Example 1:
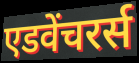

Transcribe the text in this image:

एडवेंचरर्स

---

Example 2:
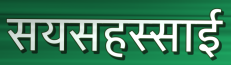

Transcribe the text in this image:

सयसहस्साई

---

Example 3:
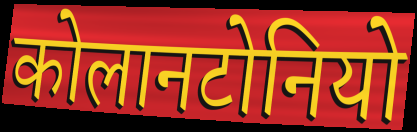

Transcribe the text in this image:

कोलानटोनियो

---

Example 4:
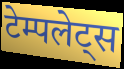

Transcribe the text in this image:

टेम्पलेट्स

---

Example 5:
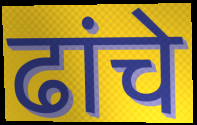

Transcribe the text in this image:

ढांचे